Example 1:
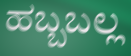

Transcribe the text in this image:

ಹಬ್ಬಬಲ್ಲ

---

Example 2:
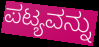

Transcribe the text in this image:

ಪಟ್ಯವನ್ನು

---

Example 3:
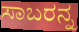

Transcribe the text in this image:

ಸಾಬರನ್ನ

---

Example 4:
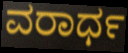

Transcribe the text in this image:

ವರಾರ್ಧ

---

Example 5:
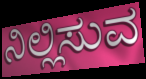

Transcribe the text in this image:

ನಿಲ್ಲಿಸುವ